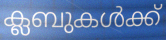
ക്ലബുകൾക്ക്